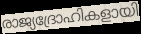
രാജ്യദ്രോഹികളായി